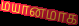
மயானமாக